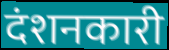
दंशनकारी